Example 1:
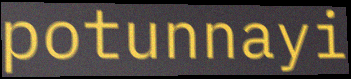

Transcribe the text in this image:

potunnayi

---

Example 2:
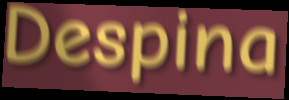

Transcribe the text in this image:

Despina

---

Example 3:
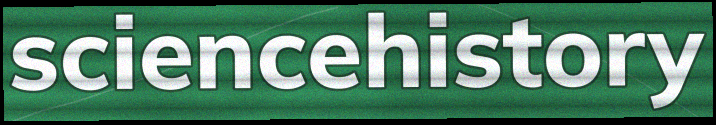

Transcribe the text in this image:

sciencehistory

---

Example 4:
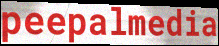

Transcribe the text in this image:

peepalmedia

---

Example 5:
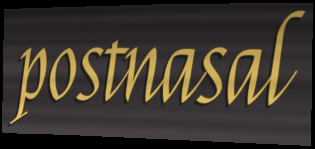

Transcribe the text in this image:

postnasal